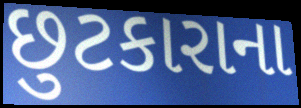
છુટકારાના